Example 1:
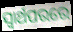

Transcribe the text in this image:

ସ୍ୱାର୍ଥପରରେ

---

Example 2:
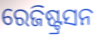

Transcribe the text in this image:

ରେଜିଷ୍ଟ୍ରସନ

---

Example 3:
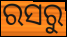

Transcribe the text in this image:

ରସରୁ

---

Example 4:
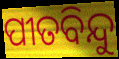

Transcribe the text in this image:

ପୀତବିନ୍ଦୁ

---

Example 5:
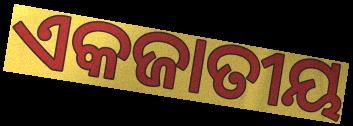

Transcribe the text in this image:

ଏକଜାତୀୟ